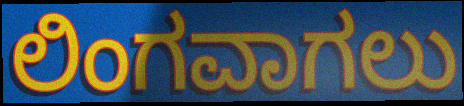
ಲಿಂಗವಾಗಲು